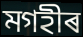
মগহীৰ